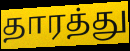
தாரத்து